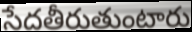
సేదతీరుతుంటారు